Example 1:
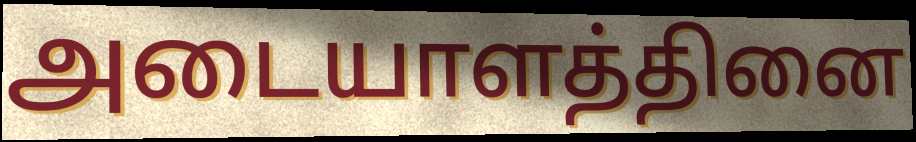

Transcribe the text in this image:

அடையாளத்தினை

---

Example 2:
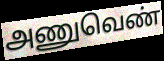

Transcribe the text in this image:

அணுவெண்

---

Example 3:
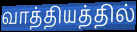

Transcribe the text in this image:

வாத்தியத்தில்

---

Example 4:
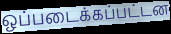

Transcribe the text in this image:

ஒப்படைக்கப்பட்டன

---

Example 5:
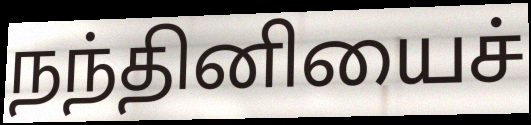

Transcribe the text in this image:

நந்தினியைச்